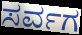
ಸರ್ವಗ